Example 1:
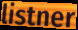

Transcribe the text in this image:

listner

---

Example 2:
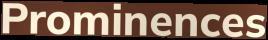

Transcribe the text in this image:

Prominences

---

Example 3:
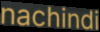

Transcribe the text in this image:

nachindi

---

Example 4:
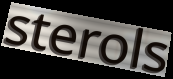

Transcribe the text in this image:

sterols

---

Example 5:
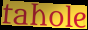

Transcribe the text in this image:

tahole